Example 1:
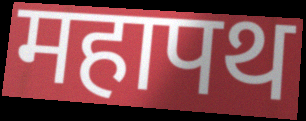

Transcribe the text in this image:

महापथ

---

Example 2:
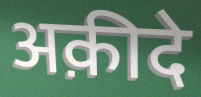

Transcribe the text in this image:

अक़ीदे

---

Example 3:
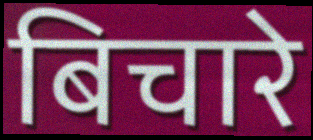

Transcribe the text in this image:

बिचारे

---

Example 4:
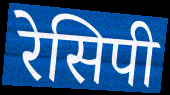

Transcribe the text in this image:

रेसिपी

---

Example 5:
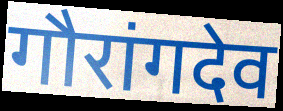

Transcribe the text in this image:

गौरांगदेव